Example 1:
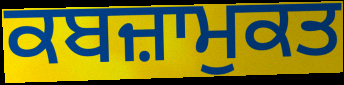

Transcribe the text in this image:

ਕਬਜ਼ਾਮੁਕਤ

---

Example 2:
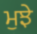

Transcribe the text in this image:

ਮੁਝੇ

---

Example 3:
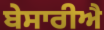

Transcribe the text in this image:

ਬੇਸਾਰੀਐ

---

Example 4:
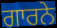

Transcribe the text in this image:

ਗਾਰਨੇ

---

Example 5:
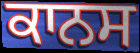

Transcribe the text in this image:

ਕਾਨਸ